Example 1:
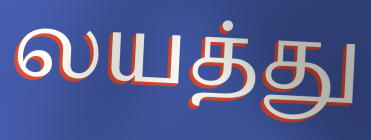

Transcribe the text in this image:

லயத்து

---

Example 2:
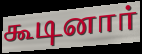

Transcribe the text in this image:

கூடினார்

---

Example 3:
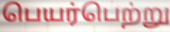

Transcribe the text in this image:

பெயர்பெற்று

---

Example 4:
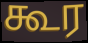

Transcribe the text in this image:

கூர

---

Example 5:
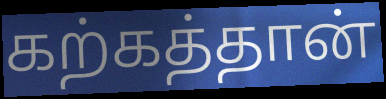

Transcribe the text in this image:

கற்கத்தான்